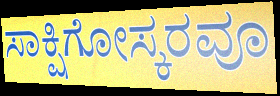
ಸಾಕ್ಷಿಗೋಸ್ಕರವೂ